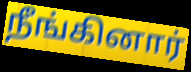
நீங்கினார்